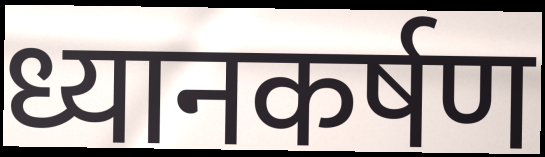
ध्यानकर्षण